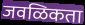
जवळिकता